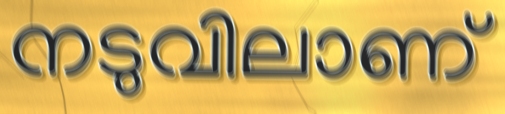
നടുവിലാണ്